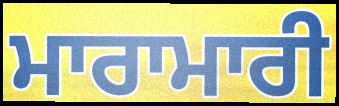
ਮਾਰਾਮਾਰੀ